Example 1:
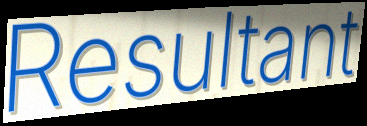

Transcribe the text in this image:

Resultant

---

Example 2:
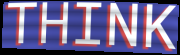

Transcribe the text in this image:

THINK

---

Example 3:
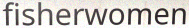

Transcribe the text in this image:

fisherwomen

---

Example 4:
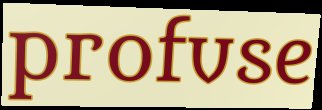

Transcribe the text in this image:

profuse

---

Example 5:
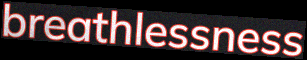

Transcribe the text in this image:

breathlessness